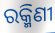
ରକ୍ମିଣୀ